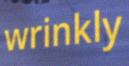
wrinkly